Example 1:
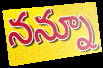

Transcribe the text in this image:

నన్నూ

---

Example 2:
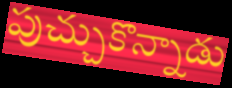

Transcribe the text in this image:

పుచ్చుకొన్నాడు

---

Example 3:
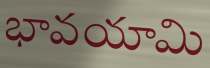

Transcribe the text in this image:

భావయామి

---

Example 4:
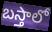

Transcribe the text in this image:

బస్తాలో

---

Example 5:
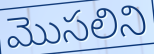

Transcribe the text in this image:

మొసలిని